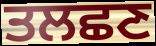
ਤਲਛਣ